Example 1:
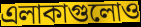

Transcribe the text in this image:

এলাকাগুলোও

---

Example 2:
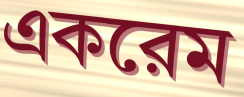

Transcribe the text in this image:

একরেম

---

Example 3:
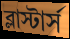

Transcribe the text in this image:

ব্লাস্টার্স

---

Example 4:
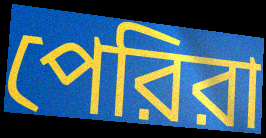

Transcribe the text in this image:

পেরিরা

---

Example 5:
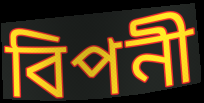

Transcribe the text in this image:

বিপনী